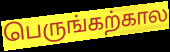
பெருங்கற்கால